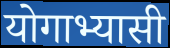
योगाभ्यासी